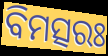
ବିମତ୍ସରଃ